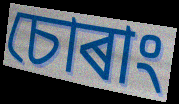
চোৰাং